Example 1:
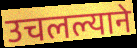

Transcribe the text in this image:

उचलल्याने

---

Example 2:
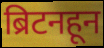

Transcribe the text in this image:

ब्रिटनहून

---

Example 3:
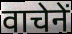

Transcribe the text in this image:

वाचेनें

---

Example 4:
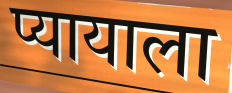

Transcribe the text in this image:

प्यायाला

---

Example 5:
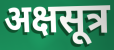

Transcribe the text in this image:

अक्षसूत्र